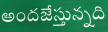
అందజేస్తున్నది